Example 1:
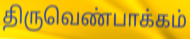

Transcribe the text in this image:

திருவெண்பாக்கம்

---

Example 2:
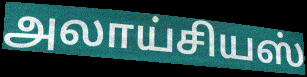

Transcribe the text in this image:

அலாய்சியஸ்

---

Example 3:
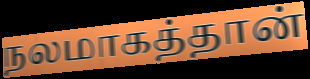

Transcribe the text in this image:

நலமாகத்தான்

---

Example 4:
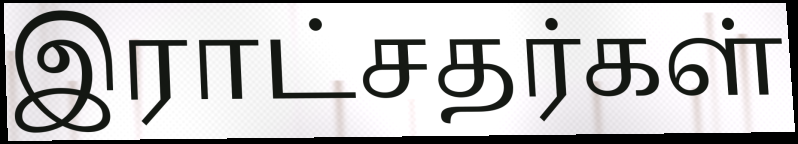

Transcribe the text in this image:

இராட்சதர்கள்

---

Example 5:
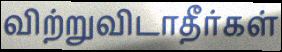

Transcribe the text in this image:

விற்றுவிடாதீர்கள்